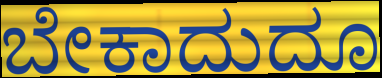
ಬೇಕಾದುದೂ